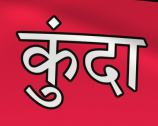
कुंदा